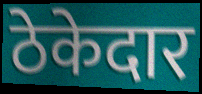
ठेकेदार